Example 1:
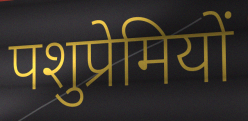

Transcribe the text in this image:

पशुप्रेमियों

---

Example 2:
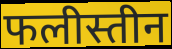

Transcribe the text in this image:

फलीस्तीन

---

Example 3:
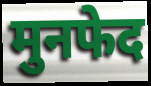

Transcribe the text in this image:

मुनफेद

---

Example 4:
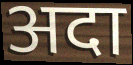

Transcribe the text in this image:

अदा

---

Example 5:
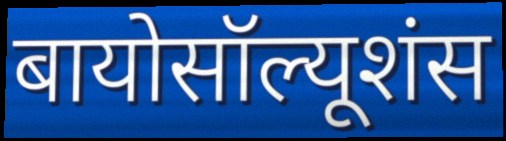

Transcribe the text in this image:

बायोसॉल्यूशंस